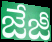
జేజీ